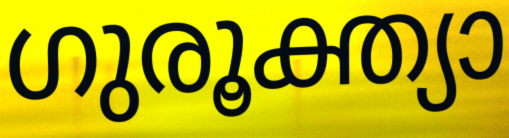
ഗുരൂക്ത്യാ